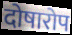
दोषारोप